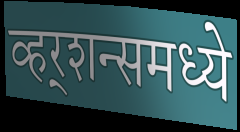
व्हर्शन्समध्ये